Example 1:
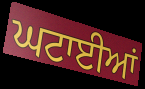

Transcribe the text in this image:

ਘਟਾਈਆਂ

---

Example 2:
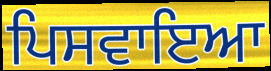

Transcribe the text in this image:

ਪਿਸਵਾਇਆ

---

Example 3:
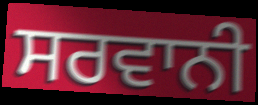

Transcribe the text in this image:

ਸਰਵਾਨੀ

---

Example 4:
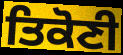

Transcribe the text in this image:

ਤਿਕੋਣੀ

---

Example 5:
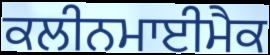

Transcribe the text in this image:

ਕਲੀਨਮਾਈਮੈਕ